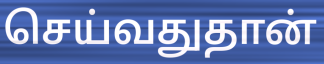
செய்வதுதான்